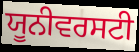
ਯੂਨੀਵਰਸਟੀ